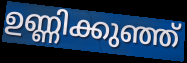
ഉണ്ണിക്കുഞ്ഞ്